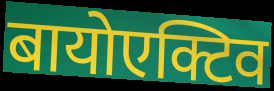
बायोएक्टिव